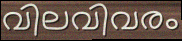
വിലവിവരം